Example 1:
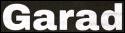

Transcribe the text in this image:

Garad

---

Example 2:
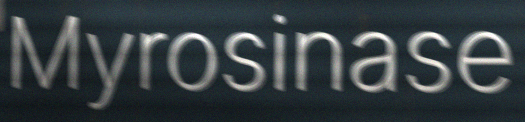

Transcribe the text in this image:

Myrosinase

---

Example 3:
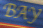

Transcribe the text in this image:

BAY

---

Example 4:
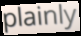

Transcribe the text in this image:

plainly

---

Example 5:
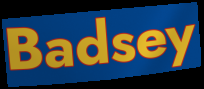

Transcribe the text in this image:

Badsey